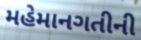
મહેમાનગતીની